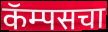
कॅम्पसचा